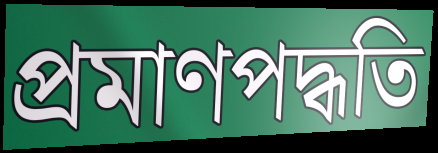
প্রমাণপদ্ধতি